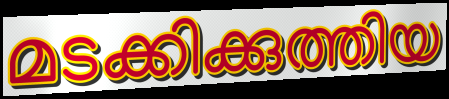
മടക്കിക്കുത്തിയ